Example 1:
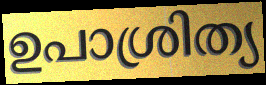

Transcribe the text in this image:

ഉപാശ്രിത്യ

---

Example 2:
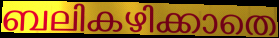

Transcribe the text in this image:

ബലികഴിക്കാതെ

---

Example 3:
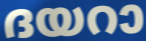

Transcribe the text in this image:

ദയറാ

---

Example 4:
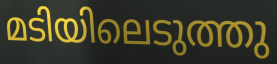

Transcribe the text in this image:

മടിയിലെടുത്തു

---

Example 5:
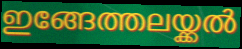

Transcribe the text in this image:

ഇങ്ങേത്തലയ്ക്കൽ